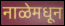
नाळेमधून